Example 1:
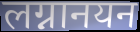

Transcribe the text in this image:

लग्नानयन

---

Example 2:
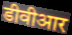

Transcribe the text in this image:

डीवीआर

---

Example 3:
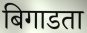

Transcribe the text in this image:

बिगाडता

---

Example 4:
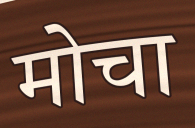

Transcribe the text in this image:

मोचा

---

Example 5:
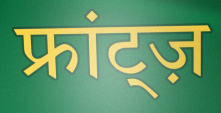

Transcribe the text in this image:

फ्रांट्ज़